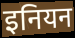
इनियन